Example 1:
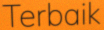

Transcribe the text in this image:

Terbaik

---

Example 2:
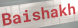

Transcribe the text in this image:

Baishakh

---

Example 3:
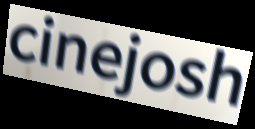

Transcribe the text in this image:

cinejosh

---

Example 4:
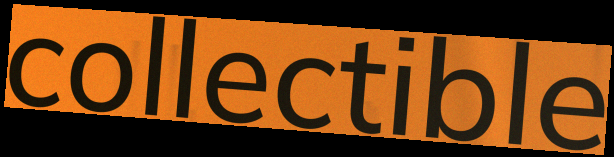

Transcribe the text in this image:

collectible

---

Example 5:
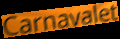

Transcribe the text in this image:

Carnavalet